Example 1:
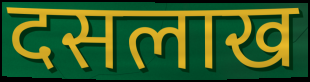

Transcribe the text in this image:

दसलाख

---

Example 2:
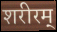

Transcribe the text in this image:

शरीरम्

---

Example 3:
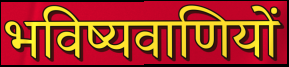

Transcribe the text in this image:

भविष्यवाणियों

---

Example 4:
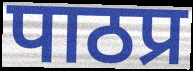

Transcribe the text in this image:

पाठप्र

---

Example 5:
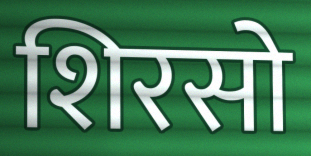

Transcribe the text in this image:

शिरसो